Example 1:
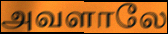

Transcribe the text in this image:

அவளாலே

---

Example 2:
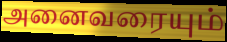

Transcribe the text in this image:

அனைவரையும்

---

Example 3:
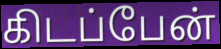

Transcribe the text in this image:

கிடப்பேன்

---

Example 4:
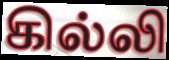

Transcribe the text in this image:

கில்லி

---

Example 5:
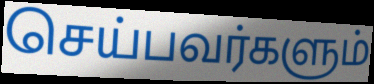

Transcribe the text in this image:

செய்பவர்களும்